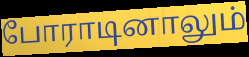
போராடினாலும்